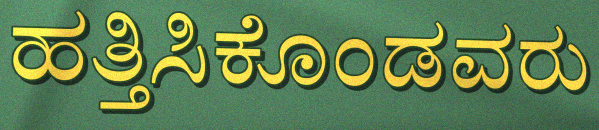
ಹತ್ತಿಸಿಕೊಂಡವರು